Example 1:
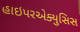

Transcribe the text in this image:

હાઇપરએક્યુસિસ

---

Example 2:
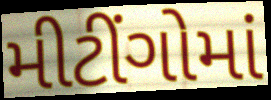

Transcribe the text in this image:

મીટીંગોમાં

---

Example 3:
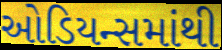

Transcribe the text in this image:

ઓડિયન્સમાંથી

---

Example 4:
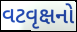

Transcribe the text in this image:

વટવૃક્ષનો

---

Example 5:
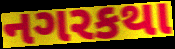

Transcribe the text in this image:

નગરકથા